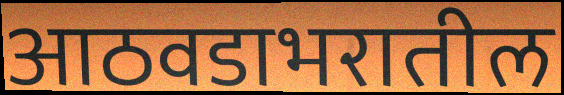
आठवडाभरातील